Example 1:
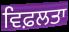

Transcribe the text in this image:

ਵਿਫ਼ਲਤਾ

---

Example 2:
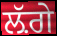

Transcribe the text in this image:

ਲ਼ੱਗੇ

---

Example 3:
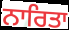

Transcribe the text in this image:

ਨਾਰਿਤਾ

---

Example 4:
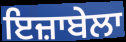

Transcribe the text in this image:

ਇਜ਼ਾਬੇਲਾ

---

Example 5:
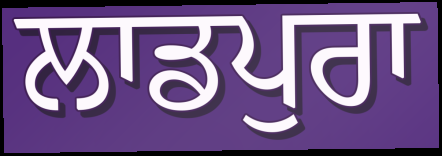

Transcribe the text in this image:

ਲਾਡਪੁਰਾ